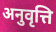
अनुवृत्ति